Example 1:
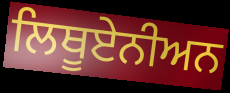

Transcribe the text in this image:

ਲਿਥੂਏਨੀਅਨ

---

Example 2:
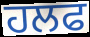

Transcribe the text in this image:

ਹਲਫ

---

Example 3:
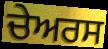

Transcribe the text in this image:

ਚੇਅਰਸ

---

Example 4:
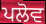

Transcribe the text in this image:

ਪਲੋਵ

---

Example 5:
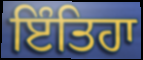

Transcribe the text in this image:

ਇੰਤਿਹਾ